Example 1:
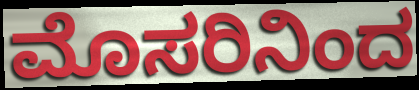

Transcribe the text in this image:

ಮೊಸರಿನಿಂದ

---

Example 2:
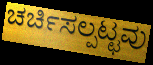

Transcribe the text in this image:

ಚರ್ಚಿಸಲ್ಪಟ್ಟವು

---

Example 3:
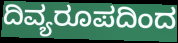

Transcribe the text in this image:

ದಿವ್ಯರೂಪದಿಂದ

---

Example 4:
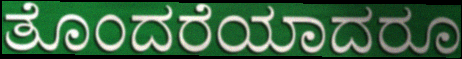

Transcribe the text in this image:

ತೊಂದರೆಯಾದರೂ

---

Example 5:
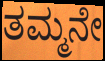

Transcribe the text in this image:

ತಮ್ಮನೇ